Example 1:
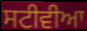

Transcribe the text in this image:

ਸਟੀਵੀਆ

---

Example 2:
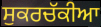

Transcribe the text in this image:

ਸੁਕਰਚੱਕੀਆ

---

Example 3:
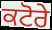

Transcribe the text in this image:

ਕਟੋਰੇ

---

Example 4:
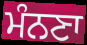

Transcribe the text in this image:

ਮੰਨਣਾ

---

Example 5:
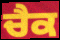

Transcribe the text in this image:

ਚੈਕ